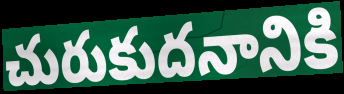
చురుకుదనానికి